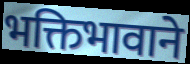
भक्तिभावाने